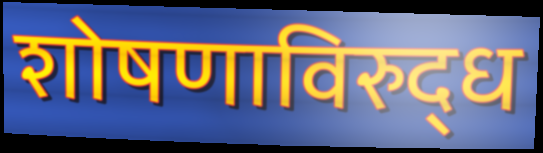
शोषणाविरुद्ध